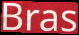
Bras